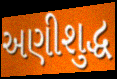
અણીશુદ્ધ